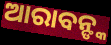
ଆରାବନ୍ଙ୍କ